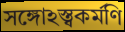
সঙ্গোঽস্ত্বকর্মণি